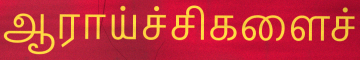
ஆராய்ச்சிகளைச்